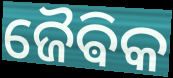
ଜୈଵିକ